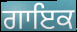
ਗਾਇਕ